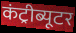
कंट्रीब्यूटर